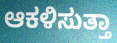
ಆಕಳಿಸುತ್ತಾ